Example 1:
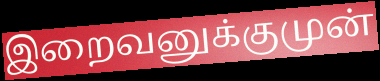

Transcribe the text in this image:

இறைவனுக்குமுன்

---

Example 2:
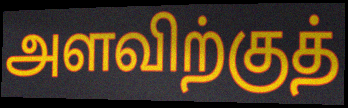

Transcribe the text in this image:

அளவிற்குத்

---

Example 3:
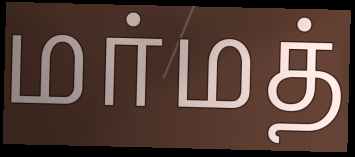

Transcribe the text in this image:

மர்மத்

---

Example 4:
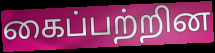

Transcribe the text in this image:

கைப்பற்றின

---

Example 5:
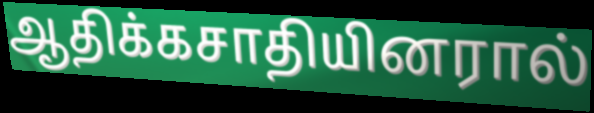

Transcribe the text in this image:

ஆதிக்கசாதியினரால்